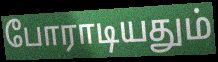
போராடியதும்